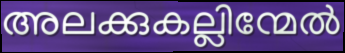
അലക്കുകല്ലിന്മേൽ